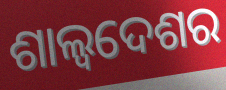
ଶାଲ୍ୱଦେଶର